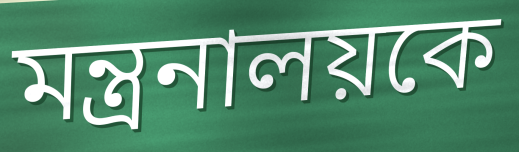
মন্ত্রনালয়কে